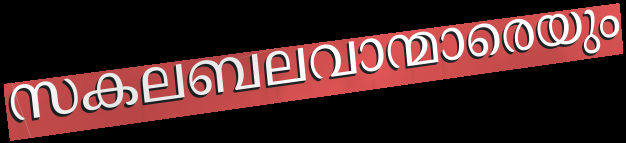
സകലബലവാന്മാരെയും